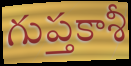
గుప్తకాశీ